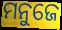
ମନୁଜେ